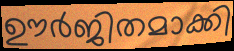
ഊർജിതമാക്കി